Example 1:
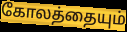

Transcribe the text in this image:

கோலத்தையும்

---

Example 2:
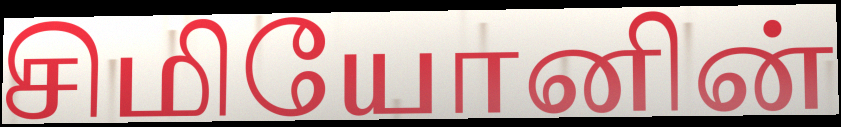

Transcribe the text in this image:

சிமியோனின்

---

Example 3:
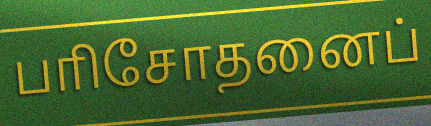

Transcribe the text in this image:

பரிசோதனைப்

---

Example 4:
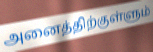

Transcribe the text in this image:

அனைத்திற்குள்ளும்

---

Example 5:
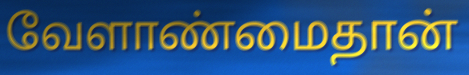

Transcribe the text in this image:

வேளாண்மைதான்